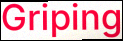
Griping